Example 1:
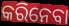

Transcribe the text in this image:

କରିନେବା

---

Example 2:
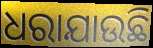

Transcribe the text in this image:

ଧରାଯାଉଛି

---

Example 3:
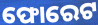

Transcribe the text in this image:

ଫୋରେଟ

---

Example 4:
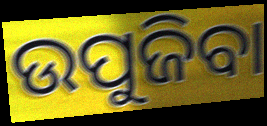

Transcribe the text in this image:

ଉପୁଜିବା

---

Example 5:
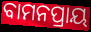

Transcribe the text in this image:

ବାମନପ୍ରାୟ